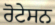
ਰੋਟੇਸਨ